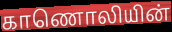
காணொலியின்